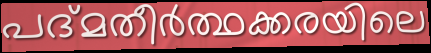
പദ്മതീർത്ഥക്കരയിലെ